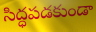
సిద్ధపడకుండా